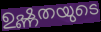
ഉഷ്ണതയുടെ